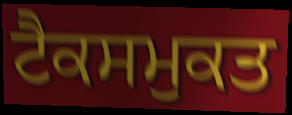
ਟੈਕਸਮੁਕਤ